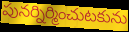
పునర్నిర్మించుటకును